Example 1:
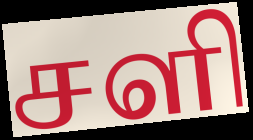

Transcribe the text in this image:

சளி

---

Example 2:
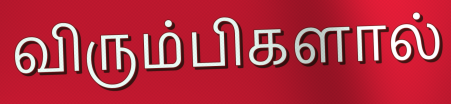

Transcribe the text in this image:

விரும்பிகளால்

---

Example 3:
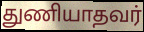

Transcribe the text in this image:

துணியாதவர்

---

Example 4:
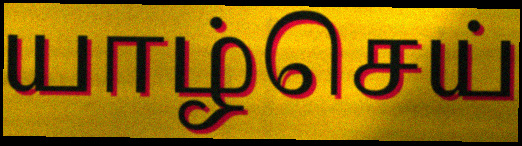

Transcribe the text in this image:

யாழ்செய்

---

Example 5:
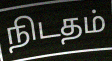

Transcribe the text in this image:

நிடதம்